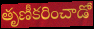
తృణీకరించాడో